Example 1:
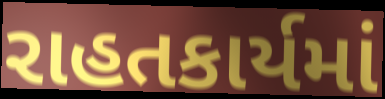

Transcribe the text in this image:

રાહતકાર્યમાં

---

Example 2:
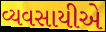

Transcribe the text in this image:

વ્યવસાયીએ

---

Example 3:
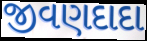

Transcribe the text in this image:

જીવણદાદા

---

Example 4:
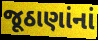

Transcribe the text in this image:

જૂઠાણાંનાં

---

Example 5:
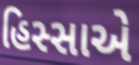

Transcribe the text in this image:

હિસ્સાએ